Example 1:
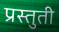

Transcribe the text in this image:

प्रस्तुती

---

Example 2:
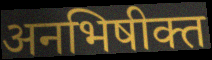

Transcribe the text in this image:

अनभिषीक्त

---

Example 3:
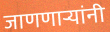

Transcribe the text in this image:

जाणणाऱ्यांनी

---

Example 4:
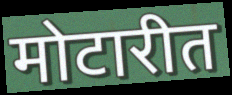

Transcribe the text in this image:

मोटारीत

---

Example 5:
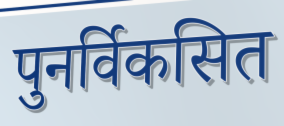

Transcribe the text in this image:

पुनर्विकसित